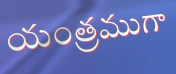
యంత్రముగా